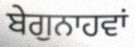
ਬੇਗੁਨਾਹਵਾਂ